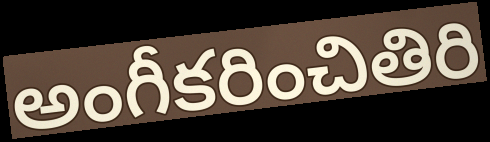
అంగీకరించితిరి